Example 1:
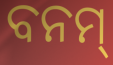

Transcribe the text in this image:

ବନମ୍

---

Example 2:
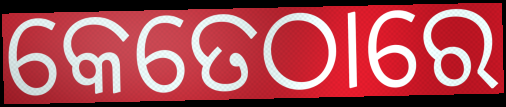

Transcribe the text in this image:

କେତେଠାରେ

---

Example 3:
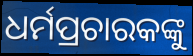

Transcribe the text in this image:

ଧର୍ମପ୍ରଚାରକଙ୍କୁ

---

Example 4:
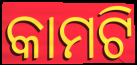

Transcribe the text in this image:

କାମଟି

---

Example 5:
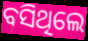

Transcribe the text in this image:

ବସିଥିଲେ